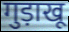
गुड़ाखू